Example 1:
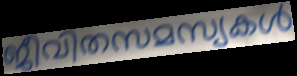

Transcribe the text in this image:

ജീവിതസമസ്യകൾ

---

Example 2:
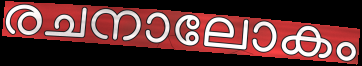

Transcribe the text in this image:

രചനാലോകം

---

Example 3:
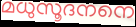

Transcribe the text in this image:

മധുസൂദനനെ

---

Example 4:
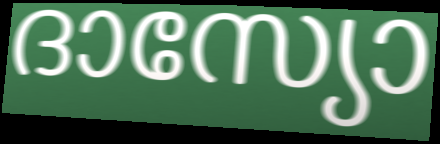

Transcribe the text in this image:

ദാസ്യോ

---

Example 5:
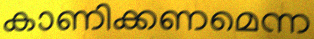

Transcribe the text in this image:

കാണിക്കണമെന്ന